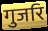
गुजरि